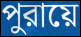
পুরায়ে